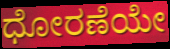
ಧೋರಣೆಯೇ